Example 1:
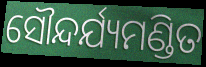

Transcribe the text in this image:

ସୌନ୍ଦର୍ଯ୍ୟମଣ୍ଡିତ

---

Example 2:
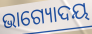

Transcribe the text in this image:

ଭାଗ୍ୟୋଦୟ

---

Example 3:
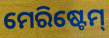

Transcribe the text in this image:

ମେରିଷ୍ଟେମ୍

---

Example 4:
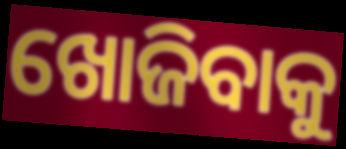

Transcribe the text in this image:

ଖୋଜିବାକୁ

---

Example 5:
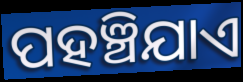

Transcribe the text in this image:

ପହଞ୍ଚିଯାଏ